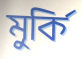
মুর্কি